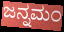
ಜನ್ನಮಂ